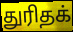
துரிதக்